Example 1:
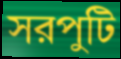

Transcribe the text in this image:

সরপুটি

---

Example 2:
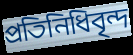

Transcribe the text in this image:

প্রতিনিধিবৃন্দ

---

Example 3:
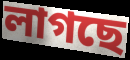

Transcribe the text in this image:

লাগছে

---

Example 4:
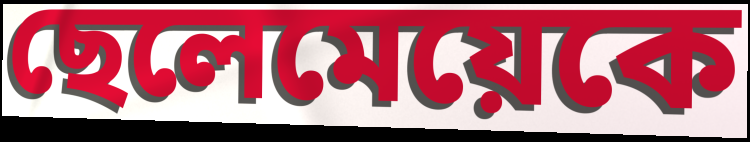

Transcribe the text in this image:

ছেলেমেয়েকে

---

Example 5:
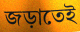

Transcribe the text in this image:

জড়াতেই